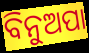
ବିନୁଅପା